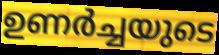
ഉണർച്ചയുടെ